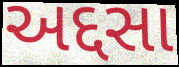
અદ્દસા